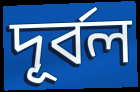
দূৰ্বল